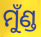
ମୁଁଣ୍ଡ